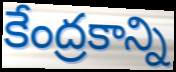
కేంద్రకాన్ని